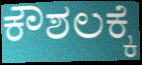
ಕೌಶಲಕ್ಕೆ